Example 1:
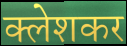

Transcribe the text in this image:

क्लेशकर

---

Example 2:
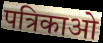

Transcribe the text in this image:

पत्रिकाओ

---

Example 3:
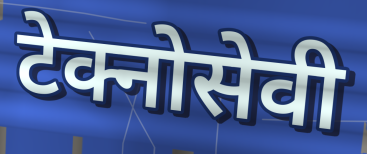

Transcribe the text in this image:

टेक्नोसेवी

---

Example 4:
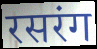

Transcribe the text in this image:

रसरंग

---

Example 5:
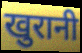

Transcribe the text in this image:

खुरानी